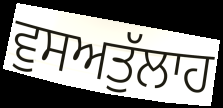
ਵੁਸਅਤੁੱਲਾਹ